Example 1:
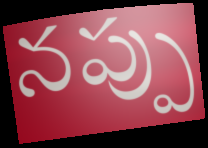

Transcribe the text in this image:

నప్పు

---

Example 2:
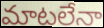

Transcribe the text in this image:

మాటలేనా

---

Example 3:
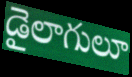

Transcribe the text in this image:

డైలాగులూ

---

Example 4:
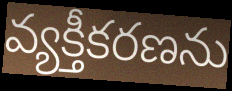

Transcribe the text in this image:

వ్యక్తీకరణను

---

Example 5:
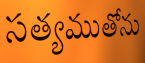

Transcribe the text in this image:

సత్యముతోను